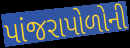
પાંજરાપોળોની